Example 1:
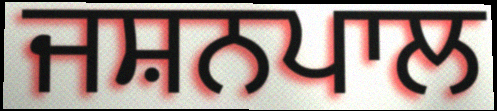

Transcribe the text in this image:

ਜਸ਼ਨਪਾਲ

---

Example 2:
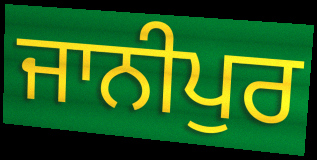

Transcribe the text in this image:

ਜਾਨੀਪੁਰ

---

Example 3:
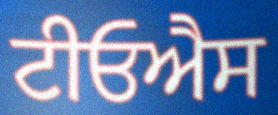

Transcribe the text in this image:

ਟੀਓਐਸ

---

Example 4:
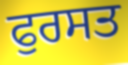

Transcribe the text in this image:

ਫੁਰਸਤ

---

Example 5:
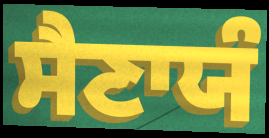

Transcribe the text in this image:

ਸੈਣਾਯੰ